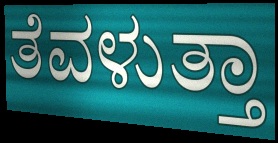
ತೆವಳುತ್ತಾ